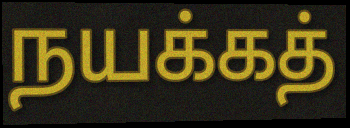
நயக்கத்